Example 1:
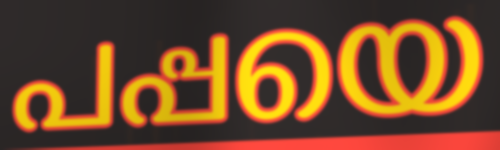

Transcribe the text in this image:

പപ്പയെ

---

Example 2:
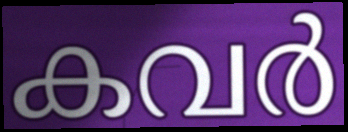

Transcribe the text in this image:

കവർ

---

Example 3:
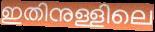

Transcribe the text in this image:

ഇതിനുള്ളിലെ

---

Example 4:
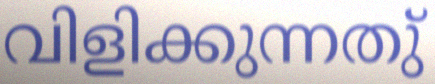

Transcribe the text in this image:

വിളിക്കുന്നതു്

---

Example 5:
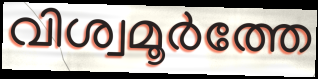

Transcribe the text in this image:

വിശ്വമൂർത്തേ